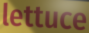
lettuce